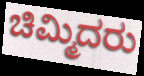
ಚಿಮ್ಮಿದರು